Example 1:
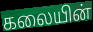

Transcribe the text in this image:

கலையின்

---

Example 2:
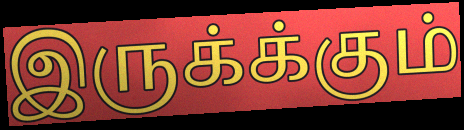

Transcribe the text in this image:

இருக்க்கும்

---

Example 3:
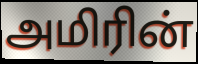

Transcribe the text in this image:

அமிரின்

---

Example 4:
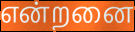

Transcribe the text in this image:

என்றனை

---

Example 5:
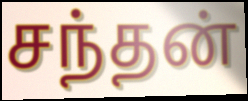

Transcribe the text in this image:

சந்தன்